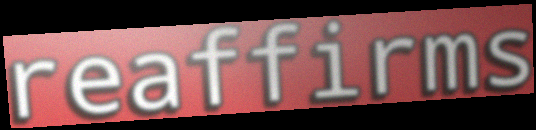
reaffirms